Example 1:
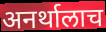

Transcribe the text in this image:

अनर्थालाच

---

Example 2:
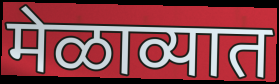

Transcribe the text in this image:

मेळाव्यात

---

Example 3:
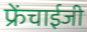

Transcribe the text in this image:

फ्रेंचाईजी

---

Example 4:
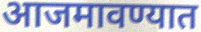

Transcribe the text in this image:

आजमावण्यात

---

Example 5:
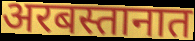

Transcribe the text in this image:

अरबस्तानात